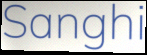
Sanghi